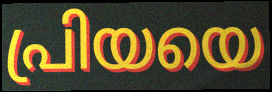
പ്രിയയെ